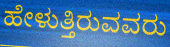
ಹೇಳುತ್ತಿರುವವರು